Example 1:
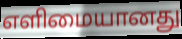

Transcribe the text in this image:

எளிமையானது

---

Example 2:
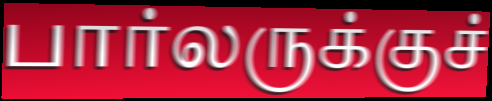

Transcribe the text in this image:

பார்லருக்குச்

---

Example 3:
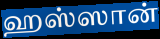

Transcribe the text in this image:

ஹஸ்ஸான்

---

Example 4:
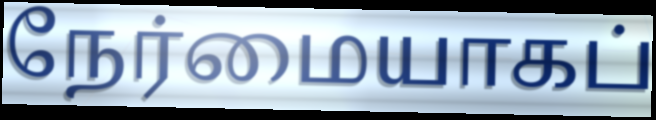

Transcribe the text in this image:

நேர்மையாகப்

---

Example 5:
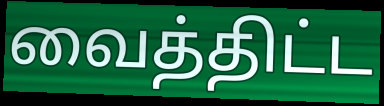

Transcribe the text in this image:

வைத்திட்ட